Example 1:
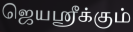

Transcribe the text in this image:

ஜெயஸ்ரீக்கும்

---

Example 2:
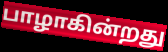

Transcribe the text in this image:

பாழாகின்றது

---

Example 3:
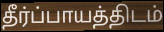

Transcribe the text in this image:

தீர்ப்பாயத்திடம்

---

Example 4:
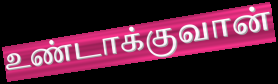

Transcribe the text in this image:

உண்டாக்குவான்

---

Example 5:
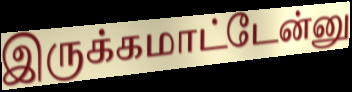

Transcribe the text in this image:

இருக்கமாட்டேன்னு